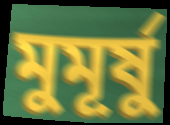
মুমূর্ষু